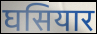
घसियार